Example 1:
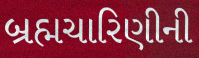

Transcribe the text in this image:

બ્રહ્મચારિણીની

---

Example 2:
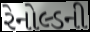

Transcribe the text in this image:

રેનોલ્ડની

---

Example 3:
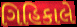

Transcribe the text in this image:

ગિહિકાલે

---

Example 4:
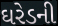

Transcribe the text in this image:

ઘરેડની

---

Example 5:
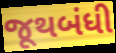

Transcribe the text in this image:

જૂથબંધી